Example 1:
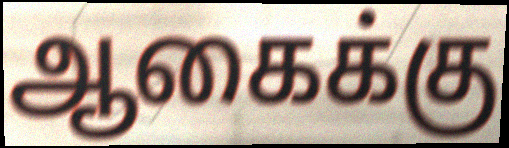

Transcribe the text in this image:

ஆகைக்கு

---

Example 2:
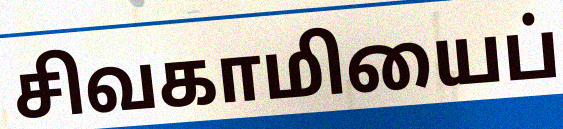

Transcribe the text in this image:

சிவகாமியைப்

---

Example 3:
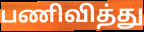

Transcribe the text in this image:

பணிவித்து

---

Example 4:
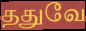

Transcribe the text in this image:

ததுவே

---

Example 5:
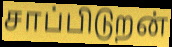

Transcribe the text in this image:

சாப்பிடுறன்